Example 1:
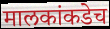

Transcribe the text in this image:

मालकांकडेच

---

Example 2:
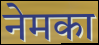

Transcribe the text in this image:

नेमका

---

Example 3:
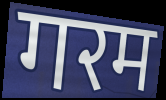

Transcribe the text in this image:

गरम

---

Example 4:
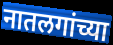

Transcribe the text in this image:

नातलगांच्या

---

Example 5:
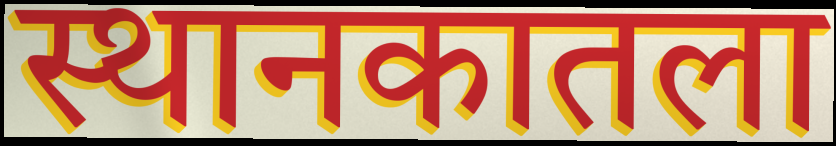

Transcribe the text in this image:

स्थानकातला